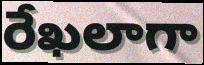
రేఖలాగా